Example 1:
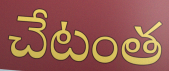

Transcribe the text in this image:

చేటంత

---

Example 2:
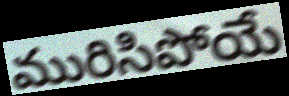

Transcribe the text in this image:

మురిసిపోయే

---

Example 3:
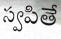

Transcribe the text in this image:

స్వపితే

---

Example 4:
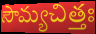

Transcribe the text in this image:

సౌమ్యచిత్తః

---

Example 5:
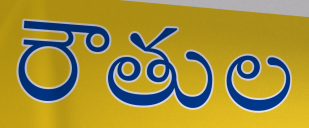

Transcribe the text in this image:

రౌతుల